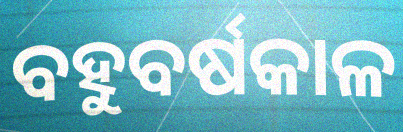
ବହୁବର୍ଷକାଳ